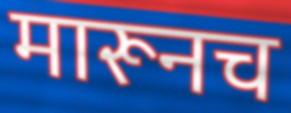
मारूनच